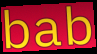
bab